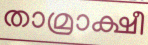
താമ്രാക്ഷീ